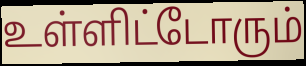
உள்ளிட்டோரும்